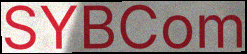
SYBCom